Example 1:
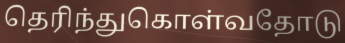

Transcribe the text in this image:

தெரிந்துகொள்வதோடு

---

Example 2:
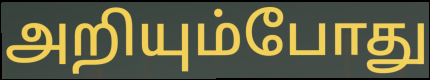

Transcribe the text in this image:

அறியும்போது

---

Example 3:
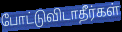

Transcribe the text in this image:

போட்டுவிடாதீர்கள்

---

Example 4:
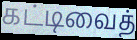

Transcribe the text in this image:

கட்டிவைத்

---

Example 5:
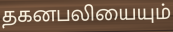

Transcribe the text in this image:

தகனபலியையும்